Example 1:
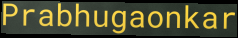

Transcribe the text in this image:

Prabhugaonkar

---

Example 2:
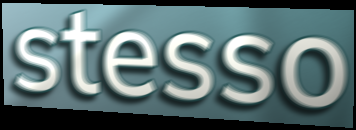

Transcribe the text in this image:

stesso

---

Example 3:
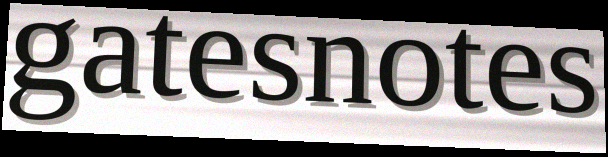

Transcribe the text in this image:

gatesnotes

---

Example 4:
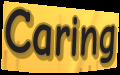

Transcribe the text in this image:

Caring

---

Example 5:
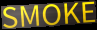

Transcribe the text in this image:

SMOKE